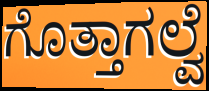
ಗೊತ್ತಾಗಲ್ವೆ